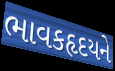
ભાવકહૃદયને